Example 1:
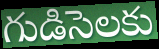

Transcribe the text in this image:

గుడిసెలకు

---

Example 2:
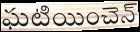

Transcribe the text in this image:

ఘటియించెన్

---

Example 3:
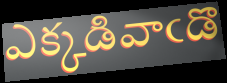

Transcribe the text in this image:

ఎక్కడివాఁడొ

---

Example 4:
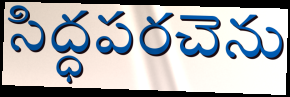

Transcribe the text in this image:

సిద్ధపరచెను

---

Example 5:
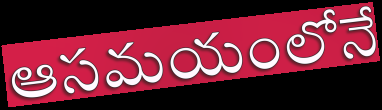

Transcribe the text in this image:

ఆసమయంలోనే